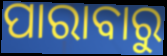
ପାରାବାରୁ